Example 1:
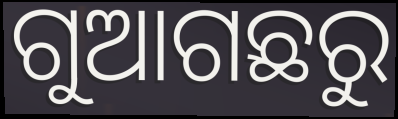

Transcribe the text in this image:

ଗୁଆଗଛରୁ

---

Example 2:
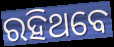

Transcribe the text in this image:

ରହିଥବେ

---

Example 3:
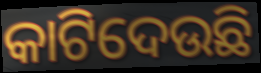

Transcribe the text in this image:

କାଟିଦେଉଛି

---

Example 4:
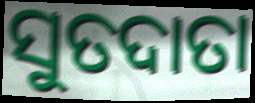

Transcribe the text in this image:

ସୁତଦାତା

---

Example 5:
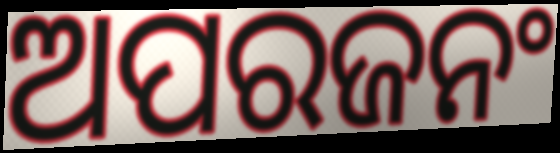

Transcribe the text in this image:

ଅପରଜନଂ